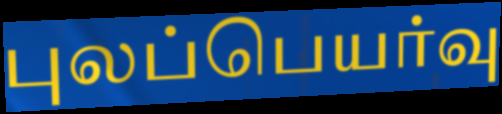
புலப்பெயர்வு